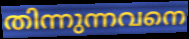
തിന്നുന്നവനെ